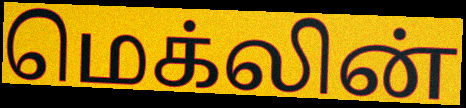
மெக்லின்